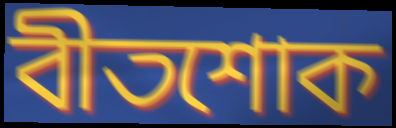
বীতশোক